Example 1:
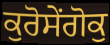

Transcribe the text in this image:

ਕੁਰੋਸੇਂਗੋਕੁ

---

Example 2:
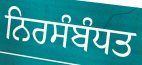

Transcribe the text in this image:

ਨਿਰਸੰਬੰਧਤ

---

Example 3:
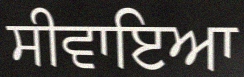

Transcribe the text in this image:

ਸੀਵਾਇਆ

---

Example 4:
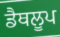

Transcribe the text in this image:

ਡੈਥਲੂਪ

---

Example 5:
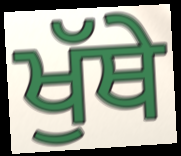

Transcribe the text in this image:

ਖੁੱਥੇ